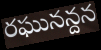
రఘునన్దన